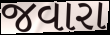
જવારા